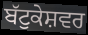
ਬੱਟੁਕੇਸ਼ਵਰ